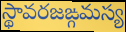
స్థావరజఙ్గమస్య